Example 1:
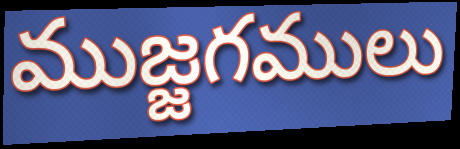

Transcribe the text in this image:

ముజ్జగములు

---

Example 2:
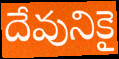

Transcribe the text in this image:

దేవునికై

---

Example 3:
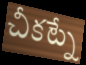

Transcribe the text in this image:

చీకట్నే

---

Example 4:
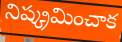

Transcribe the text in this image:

నిష్క్రమించాక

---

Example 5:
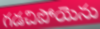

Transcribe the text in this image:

గడచిపోయెను